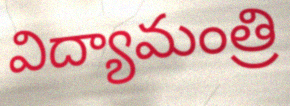
విద్యామంత్రి